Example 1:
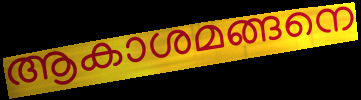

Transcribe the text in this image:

ആകാശമങ്ങനെ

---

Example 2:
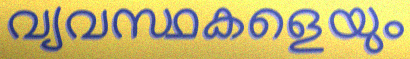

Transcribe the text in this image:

വ്യവസ്ഥകളെയും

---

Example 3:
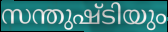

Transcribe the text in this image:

സന്തുഷ്ടിയും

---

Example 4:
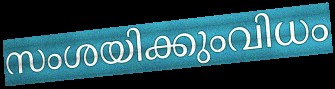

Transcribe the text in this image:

സംശയിക്കുംവിധം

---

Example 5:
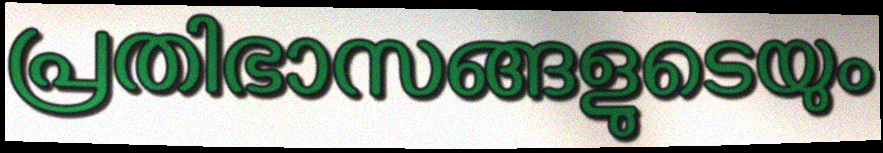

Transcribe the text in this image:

പ്രതിഭാസങ്ങളുടെയും